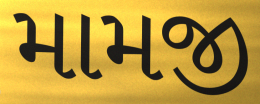
મામજી